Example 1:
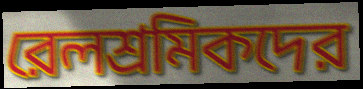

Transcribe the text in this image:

রেলশ্রমিকদের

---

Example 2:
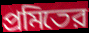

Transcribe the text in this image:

প্রমিতের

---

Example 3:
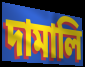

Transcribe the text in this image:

দামালি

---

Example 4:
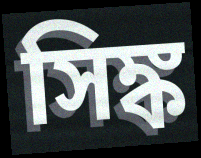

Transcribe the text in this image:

সিঙ্ক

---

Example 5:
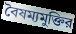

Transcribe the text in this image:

বৈষম্যমুক্তির